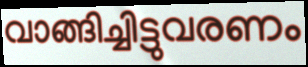
വാങ്ങിച്ചിട്ടുവരണം